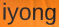
iyong